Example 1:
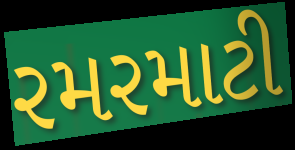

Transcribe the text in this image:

રમરમાટી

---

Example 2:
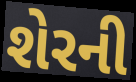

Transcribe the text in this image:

શેરની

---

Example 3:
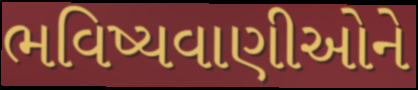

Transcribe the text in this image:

ભવિષ્યવાણીઓને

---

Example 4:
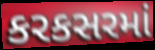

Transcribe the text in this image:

કરકસરમાં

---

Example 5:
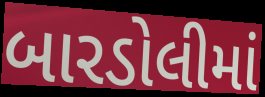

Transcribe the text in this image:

બારડોલીમાં